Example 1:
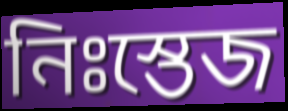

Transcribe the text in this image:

নিঃস্তেজ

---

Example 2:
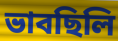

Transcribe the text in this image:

ভাবছিলি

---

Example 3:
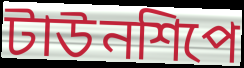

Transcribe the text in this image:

টাউনশিপে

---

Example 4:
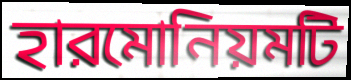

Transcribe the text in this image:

হারমোনিয়মটি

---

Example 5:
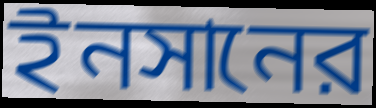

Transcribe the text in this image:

ইনসানের